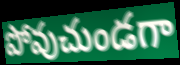
పోవుచుండగా